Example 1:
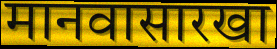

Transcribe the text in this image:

मानवासारखा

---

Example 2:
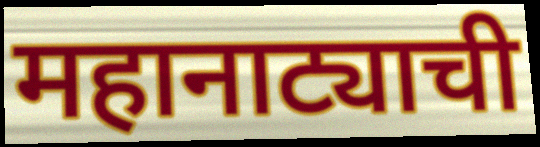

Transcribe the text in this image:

महानाट्याची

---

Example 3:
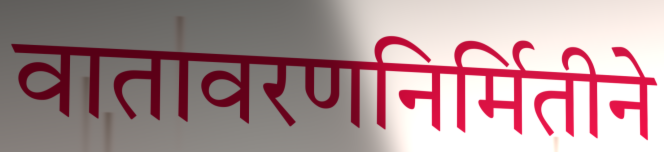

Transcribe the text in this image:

वातावरणनिर्मितीने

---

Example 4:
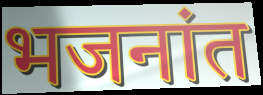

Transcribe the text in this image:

भजनांत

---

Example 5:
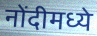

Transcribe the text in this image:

नोंदीमध्ये